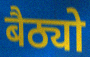
बैठ्यो